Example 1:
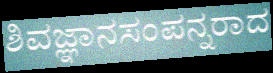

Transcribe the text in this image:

ಶಿವಜ್ಞಾನಸಂಪನ್ನರಾದ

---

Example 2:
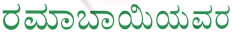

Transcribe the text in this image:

ರಮಾಬಾಯಿಯವರ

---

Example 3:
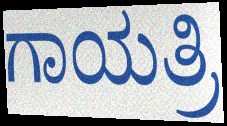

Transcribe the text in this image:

ಗಾಯತ್ರಿ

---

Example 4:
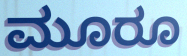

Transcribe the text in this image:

ಮೂರೂ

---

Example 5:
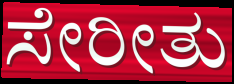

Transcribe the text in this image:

ಸೇರೀತು